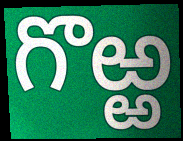
గొఱ్ఱ